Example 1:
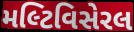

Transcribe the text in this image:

મલ્ટિવિસેરલ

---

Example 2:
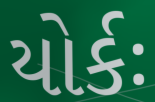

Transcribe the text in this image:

યોર્કઃ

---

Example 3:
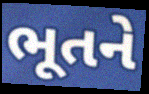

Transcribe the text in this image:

ભૂતને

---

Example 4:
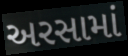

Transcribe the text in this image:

અરસામાં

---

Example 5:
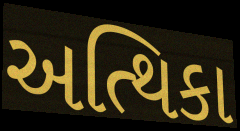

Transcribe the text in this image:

અત્થિકા